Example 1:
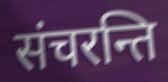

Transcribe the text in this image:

संचरन्ति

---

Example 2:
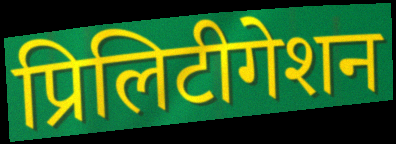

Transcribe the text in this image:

प्रिलिटीगेशन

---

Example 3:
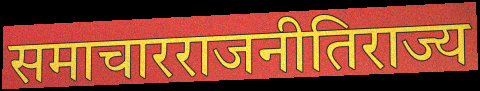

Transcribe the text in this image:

समाचारराजनीतिराज्य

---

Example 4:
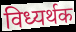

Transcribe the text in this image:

विध्यर्थक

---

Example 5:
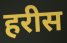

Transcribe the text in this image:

हरीस